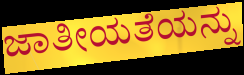
ಜಾತೀಯತೆಯನ್ನು